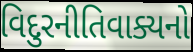
વિદુરનીતિવાક્યનો